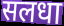
सलधा